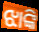
ଝାଙ୍କି